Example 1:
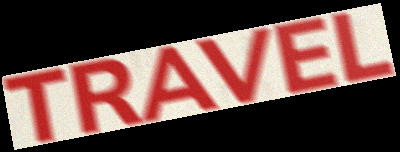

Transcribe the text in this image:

TRAVEL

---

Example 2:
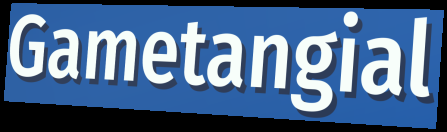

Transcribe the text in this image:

Gametangial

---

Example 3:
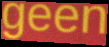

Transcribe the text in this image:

geen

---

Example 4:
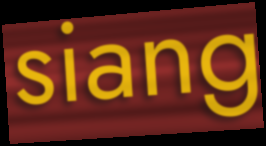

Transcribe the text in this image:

siang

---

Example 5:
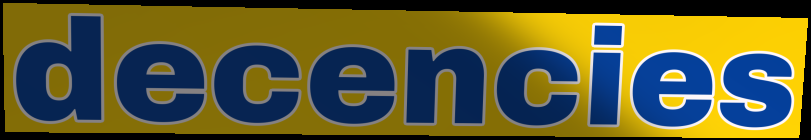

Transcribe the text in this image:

decencies